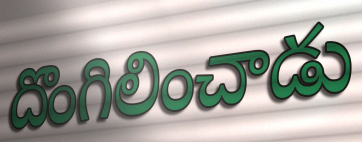
దొంగిలించాడు